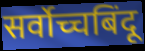
सर्वोच्चबिंदू